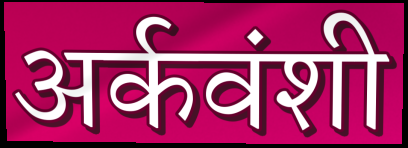
अर्कवंशी